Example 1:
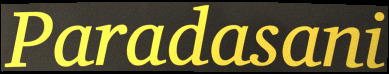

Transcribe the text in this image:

Paradasani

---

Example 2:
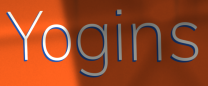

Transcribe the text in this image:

Yogins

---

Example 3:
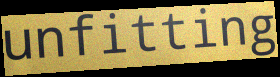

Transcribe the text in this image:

unfitting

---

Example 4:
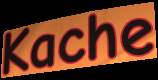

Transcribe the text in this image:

Kache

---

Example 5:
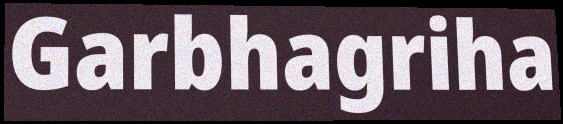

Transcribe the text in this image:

Garbhagriha